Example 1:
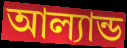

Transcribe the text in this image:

আল্যান্ড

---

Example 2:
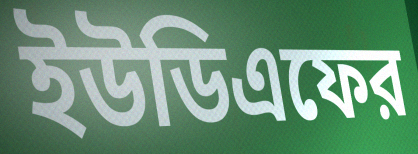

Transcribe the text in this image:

ইউডিএফের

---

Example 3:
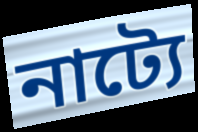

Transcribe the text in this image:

নাট্যে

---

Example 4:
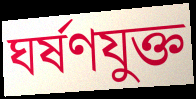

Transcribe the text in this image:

ঘর্ষণযুক্ত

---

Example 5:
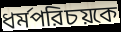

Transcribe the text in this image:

ধর্মপরিচয়কে